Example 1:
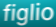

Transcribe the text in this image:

figlio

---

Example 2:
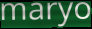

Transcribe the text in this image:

maryo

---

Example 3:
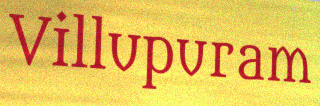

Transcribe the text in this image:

Villupuram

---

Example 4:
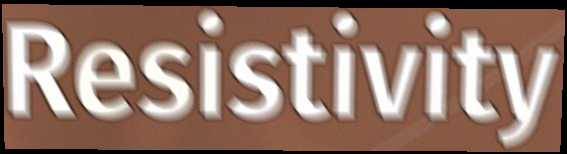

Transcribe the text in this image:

Resistivity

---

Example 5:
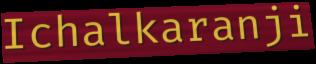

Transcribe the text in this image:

Ichalkaranji